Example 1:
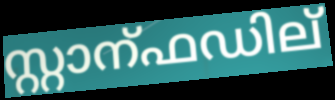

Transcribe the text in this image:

സ്റ്റാന്ഫഡില്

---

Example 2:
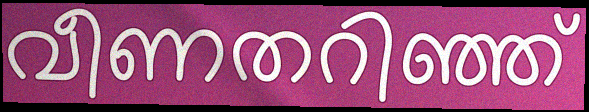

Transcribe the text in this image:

വീണതറിഞ്ഞ്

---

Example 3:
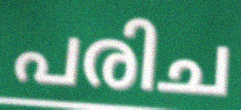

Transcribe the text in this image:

പരിച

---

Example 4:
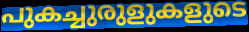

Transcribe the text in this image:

പുകച്ചുരുളുകളുടെ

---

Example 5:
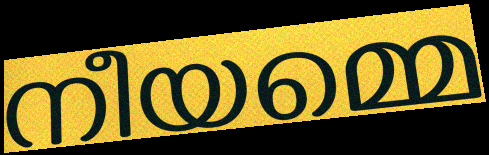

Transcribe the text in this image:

നീയമ്മെ